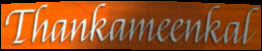
Thankameenkal